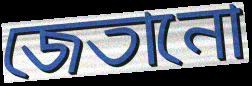
জেতানো